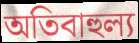
অতিবাহুল্য